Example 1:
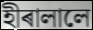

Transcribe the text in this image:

হীৰালালে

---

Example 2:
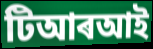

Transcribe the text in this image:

টিআৰআই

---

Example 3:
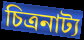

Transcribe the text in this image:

চিত্ৰনাট্য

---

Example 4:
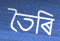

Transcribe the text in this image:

তৈৰি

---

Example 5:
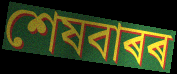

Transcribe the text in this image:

শেষবাৰৰ